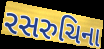
રસરુચિના